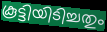
കൂട്ടിയിടിച്ചതും